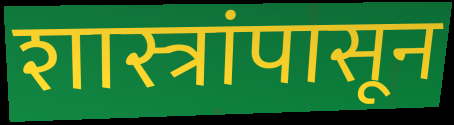
शास्त्रांपासून